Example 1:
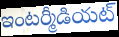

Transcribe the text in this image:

ఇంటర్మీడియట్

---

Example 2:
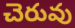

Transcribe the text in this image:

చెరువు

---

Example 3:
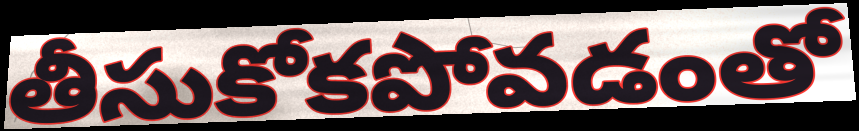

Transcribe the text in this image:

తీసుకోకపోవడంతో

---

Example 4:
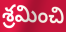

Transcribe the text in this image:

శ్రమించి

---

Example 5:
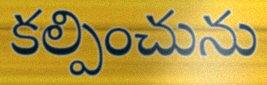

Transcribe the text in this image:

కల్పించును